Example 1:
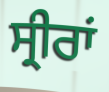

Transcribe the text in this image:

ਸ੍ਰੀਰਾਂ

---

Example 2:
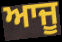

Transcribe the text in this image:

ਆਜੂ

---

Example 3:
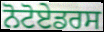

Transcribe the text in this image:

ਨੋਟੋਏਡਰਸ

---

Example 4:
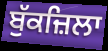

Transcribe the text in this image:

ਬੁੱਕਜ਼ਿਲਾ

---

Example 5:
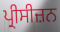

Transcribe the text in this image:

ਪ੍ਰੀਸੀਜ਼ਨ